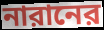
নারানের